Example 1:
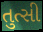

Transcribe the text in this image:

તુત્સી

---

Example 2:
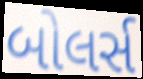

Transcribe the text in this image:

બોલર્સ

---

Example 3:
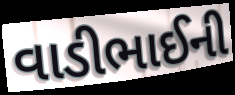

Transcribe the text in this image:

વાડીભાઈની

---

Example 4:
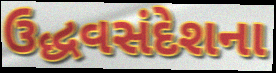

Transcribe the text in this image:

ઉદ્ધવસંદેશના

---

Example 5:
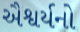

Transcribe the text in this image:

ઐશ્વર્યનો